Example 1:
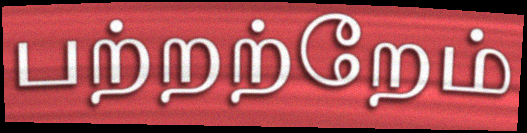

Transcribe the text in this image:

பற்றற்றேம்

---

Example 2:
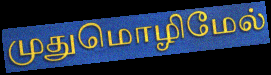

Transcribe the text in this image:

முதுமொழிமேல்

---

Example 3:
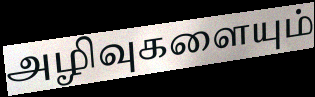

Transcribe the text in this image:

அழிவுகளையும்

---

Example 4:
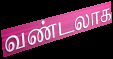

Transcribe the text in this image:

வண்டலாக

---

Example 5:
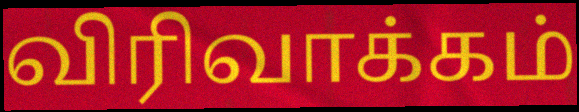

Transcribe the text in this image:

விரிவாக்கம்